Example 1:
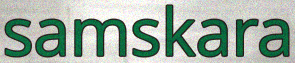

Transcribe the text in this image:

samskara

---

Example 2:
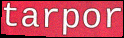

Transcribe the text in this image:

tarpor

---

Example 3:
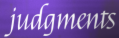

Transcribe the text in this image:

judgments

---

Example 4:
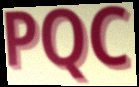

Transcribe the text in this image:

PQC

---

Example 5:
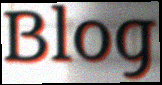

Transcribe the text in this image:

Blog